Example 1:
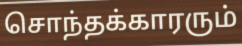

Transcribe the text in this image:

சொந்தக்காரரும்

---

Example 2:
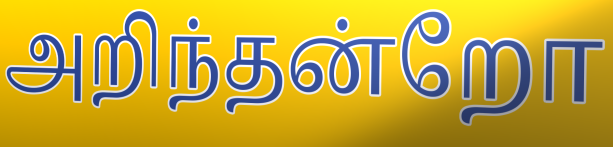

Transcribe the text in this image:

அறிந்தன்றோ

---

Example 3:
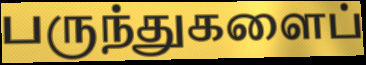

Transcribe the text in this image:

பருந்துகளைப்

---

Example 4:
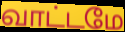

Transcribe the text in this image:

வாட்டமே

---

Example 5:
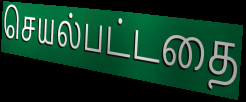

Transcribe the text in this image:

செயல்பட்டதை